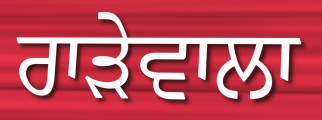
ਰਾੜੇਵਾਲਾ